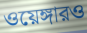
ওয়েঙ্গারও